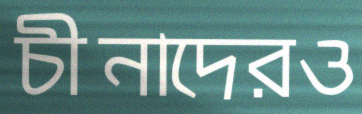
চীনাদেরও